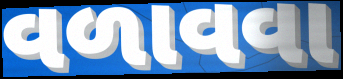
વળાવવા